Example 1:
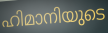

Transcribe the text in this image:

ഹിമാനിയുടെ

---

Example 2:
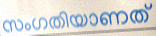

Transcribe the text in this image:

സംഗതിയാണത്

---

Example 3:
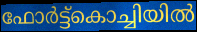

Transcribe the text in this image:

ഫോർട്ട്കൊച്ചിയിൽ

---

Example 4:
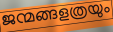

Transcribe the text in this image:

ജന്മങ്ങളത്രയും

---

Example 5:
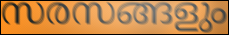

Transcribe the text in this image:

സരസങ്ങളും